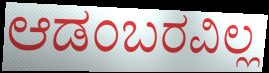
ಆಡಂಬರವಿಲ್ಲ